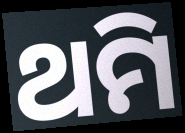
ଥମି